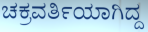
ಚಕ್ರವರ್ತಿಯಾಗಿದ್ದ